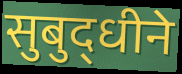
सुबुद्धीने